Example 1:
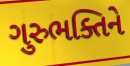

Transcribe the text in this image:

ગુરુભક્તિને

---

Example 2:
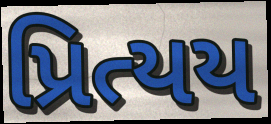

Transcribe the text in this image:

પ્રિત્યય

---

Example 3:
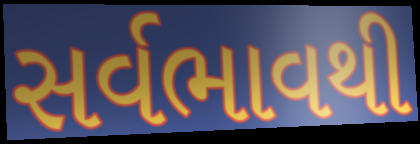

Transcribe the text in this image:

સર્વભાવથી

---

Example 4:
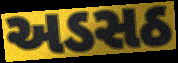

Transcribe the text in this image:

અડસઠ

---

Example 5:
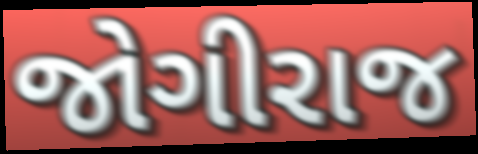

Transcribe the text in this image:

જોગીરાજ